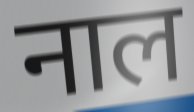
नाल